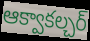
ఆక్వాకల్చర్